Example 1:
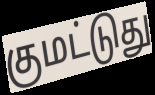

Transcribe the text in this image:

குமட்டுது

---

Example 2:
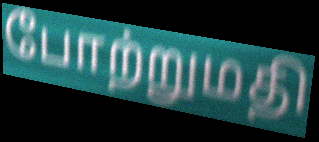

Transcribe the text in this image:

போற்றுமதி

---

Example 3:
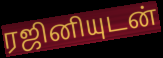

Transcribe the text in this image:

ரஜினியுடன்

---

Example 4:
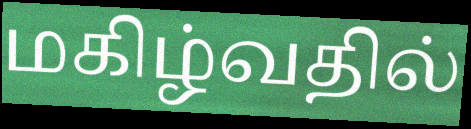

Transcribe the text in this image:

மகிழ்வதில்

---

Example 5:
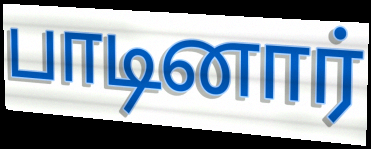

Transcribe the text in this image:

பாடினார்